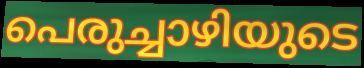
പെരുച്ചാഴിയുടെ